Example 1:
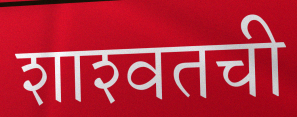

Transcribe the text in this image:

शाश्वतची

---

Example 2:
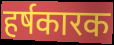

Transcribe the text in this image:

हर्षकारक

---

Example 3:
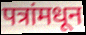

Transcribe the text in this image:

पत्रांमधून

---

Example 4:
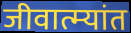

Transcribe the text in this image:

जीवात्म्यांत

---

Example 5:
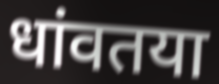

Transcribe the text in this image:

धांवतया